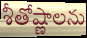
శీతోష్ణాలను